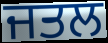
ਜਤਲ